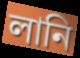
লানি